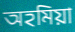
অহমিয়া